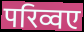
परिव्वए